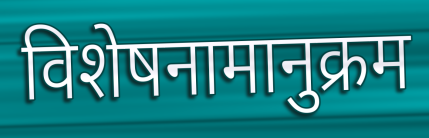
विशेषनामानुक्रम